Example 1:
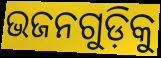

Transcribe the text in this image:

ଭଜନଗୁଡ଼ିକୁ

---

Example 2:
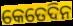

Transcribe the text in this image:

କେତେଦିନ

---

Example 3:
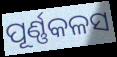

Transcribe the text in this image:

ପୂର୍ଣ୍ଣକଳସ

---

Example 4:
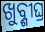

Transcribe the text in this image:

ଖୁବ୍ଶୀଘ୍ର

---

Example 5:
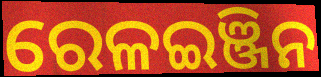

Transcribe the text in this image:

ରେଳଇଞ୍ଜିନ